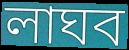
লাঘব